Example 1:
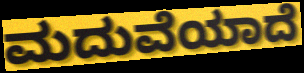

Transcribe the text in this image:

ಮದುವೆಯಾದೆ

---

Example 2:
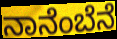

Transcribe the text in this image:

ನಾನೆಂಬೆನೆ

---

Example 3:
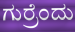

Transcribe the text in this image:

ಗುರ್ರೆಂದು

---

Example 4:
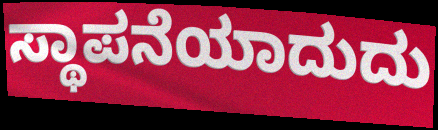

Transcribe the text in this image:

ಸ್ಥಾಪನೆಯಾದುದು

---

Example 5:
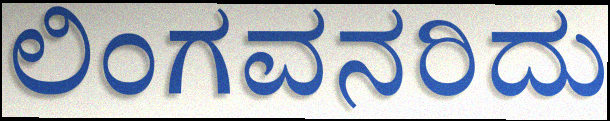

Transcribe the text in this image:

ಲಿಂಗವನರಿದು